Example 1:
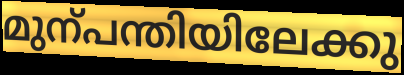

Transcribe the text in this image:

മുന്പന്തിയിലേക്കു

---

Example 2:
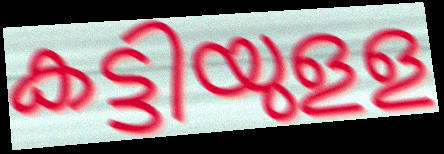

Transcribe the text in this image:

കട്ടിയുളള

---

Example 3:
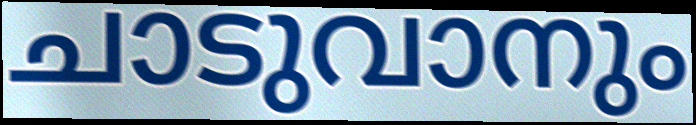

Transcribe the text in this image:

ചാടുവാനും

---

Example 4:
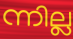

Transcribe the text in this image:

ന്നില്ല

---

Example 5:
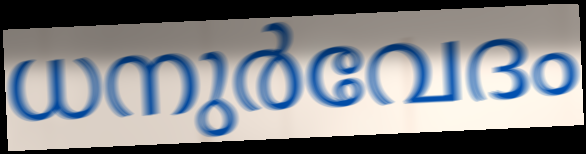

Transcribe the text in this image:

ധനുർവേദം